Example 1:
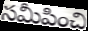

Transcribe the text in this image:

సమీపించి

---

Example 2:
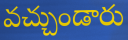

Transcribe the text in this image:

వచ్చుండారు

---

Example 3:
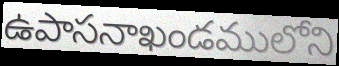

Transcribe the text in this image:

ఉపాసనాఖండములోని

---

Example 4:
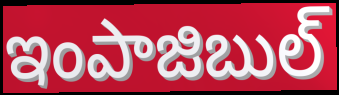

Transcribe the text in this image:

ఇంపాజిబుల్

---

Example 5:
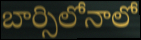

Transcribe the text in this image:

బార్సిలోనాలో